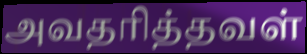
அவதரித்தவள்